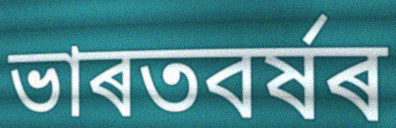
ভাৰতবৰ্ষৰ